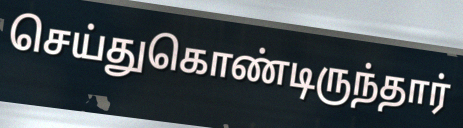
செய்துகொண்டிருந்தார்